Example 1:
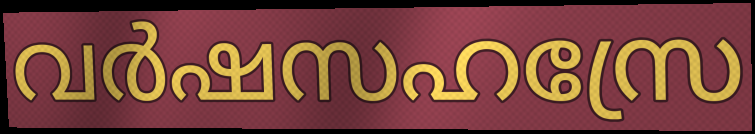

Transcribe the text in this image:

വർഷസഹസ്രേ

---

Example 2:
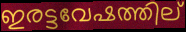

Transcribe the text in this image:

ഇരട്ടവേഷത്തില്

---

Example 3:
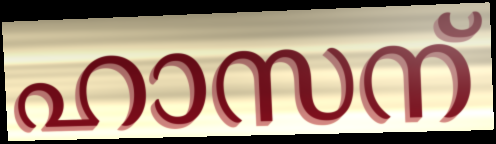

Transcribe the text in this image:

ഹാസന്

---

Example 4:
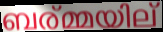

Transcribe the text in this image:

ബര്മ്മയില്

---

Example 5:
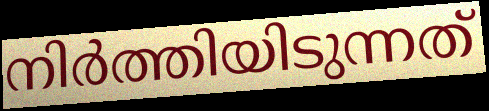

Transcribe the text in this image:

നിർത്തിയിടുന്നത്